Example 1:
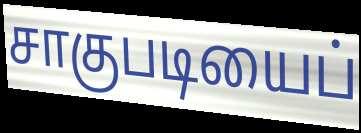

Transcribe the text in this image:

சாகுபடியைப்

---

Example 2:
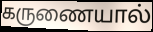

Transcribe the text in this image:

கருணையால்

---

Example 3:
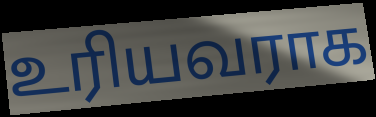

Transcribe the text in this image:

உரியவராக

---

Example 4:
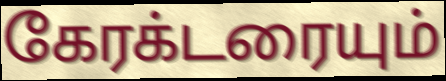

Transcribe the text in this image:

கேரக்டரையும்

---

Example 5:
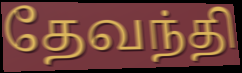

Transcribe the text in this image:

தேவந்தி